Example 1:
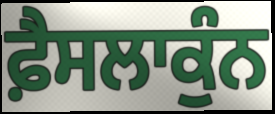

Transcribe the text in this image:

ਫ਼ੈਸਲਾਕੁੰਨ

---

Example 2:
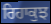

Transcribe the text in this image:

ਰਿਹਾਕੁਝ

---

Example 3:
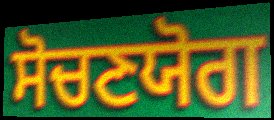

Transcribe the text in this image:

ਸੋਚਣਯੋਗ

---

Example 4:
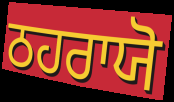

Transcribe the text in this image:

ਠਹਰਾਯੋ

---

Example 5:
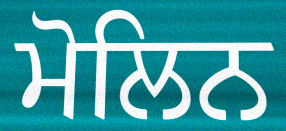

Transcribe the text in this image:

ਮੋਲਿਨ